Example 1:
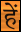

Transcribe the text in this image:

हें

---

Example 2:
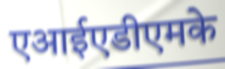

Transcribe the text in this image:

एआईएडीएमके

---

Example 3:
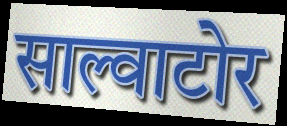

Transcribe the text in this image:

साल्वाटोर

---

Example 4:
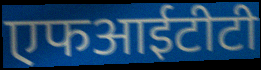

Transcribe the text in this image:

एफआईटीटी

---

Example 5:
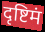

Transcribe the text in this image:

दृष्टिमं